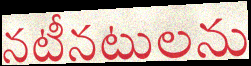
నటీనటులను